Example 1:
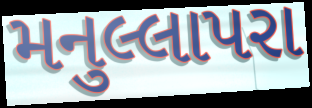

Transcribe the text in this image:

મનુલ્લાપરા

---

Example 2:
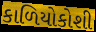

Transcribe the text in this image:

કાળિયોકોશી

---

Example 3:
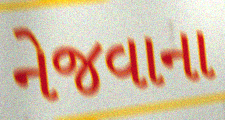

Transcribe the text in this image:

નેજવાના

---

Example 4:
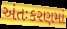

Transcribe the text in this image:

અંતઃકરણમાં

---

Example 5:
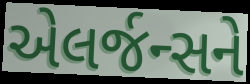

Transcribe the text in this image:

એલર્જન્સને